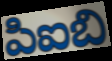
పిఐబి